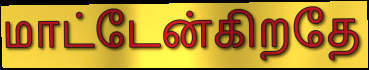
மாட்டேன்கிறதே